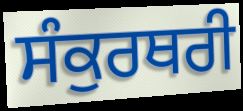
ਸੰਕੁਰਥਰੀ